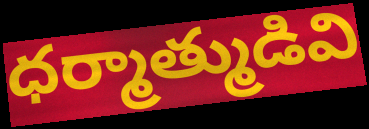
ధర్మాత్ముడివి